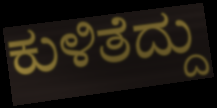
ಕುಳಿತೆದ್ದು